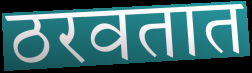
ठरवतात